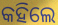
କହିଲେ